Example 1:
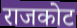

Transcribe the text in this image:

राजकोट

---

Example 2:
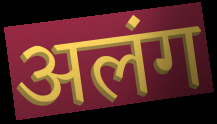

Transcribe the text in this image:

अलंग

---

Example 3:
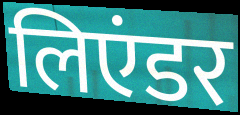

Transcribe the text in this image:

लिएंडर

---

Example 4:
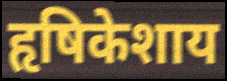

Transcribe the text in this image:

हृषिकेशाय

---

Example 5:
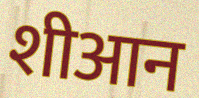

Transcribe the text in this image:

शीआन